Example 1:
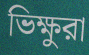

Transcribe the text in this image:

ভিক্ষুরা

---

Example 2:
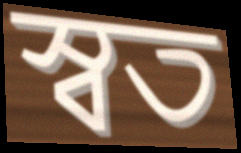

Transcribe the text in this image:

স্বত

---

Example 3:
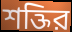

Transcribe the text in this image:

শক্তির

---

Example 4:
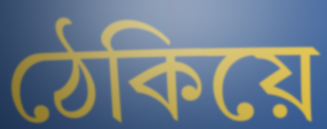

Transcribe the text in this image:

ঠেকিয়ে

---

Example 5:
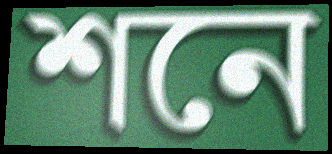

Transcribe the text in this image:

শনে